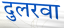
दुलरवा